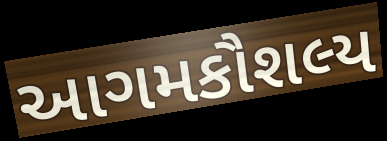
આગમકૌશલ્ય